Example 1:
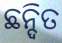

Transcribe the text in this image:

ଛନ୍ଦିତ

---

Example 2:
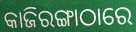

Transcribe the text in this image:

କାଜିରଙ୍ଗାଠାରେ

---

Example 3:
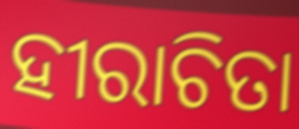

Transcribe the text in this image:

ହୀରାଚିତା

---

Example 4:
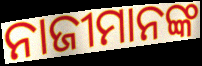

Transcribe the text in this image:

ନାଜୀମାନଙ୍କ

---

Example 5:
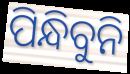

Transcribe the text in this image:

ପିନ୍ଧିବୁନି